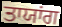
ਤਾਯਾਂਗ